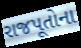
રાજપૂતોના